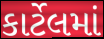
કાર્ટેલમાં